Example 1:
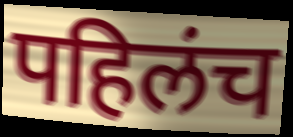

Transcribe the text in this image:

पहिलंच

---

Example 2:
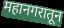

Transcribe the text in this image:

महानगरातून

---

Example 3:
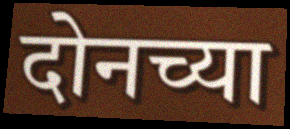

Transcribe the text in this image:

दोनच्या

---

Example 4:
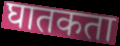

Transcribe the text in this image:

घातकता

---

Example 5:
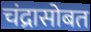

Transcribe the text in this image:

चंद्रासोबत